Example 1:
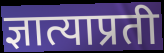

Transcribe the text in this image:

ज्ञात्याप्रती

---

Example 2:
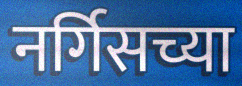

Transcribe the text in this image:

नर्गिसच्या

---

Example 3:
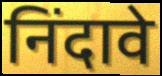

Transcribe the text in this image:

निंदावे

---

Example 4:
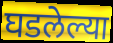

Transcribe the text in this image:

घडलेल्या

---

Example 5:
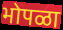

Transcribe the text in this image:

भोपळा